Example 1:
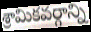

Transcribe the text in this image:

శ్రామికవర్గాన్ని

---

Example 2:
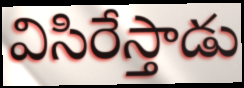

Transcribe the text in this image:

విసిరేస్తాడు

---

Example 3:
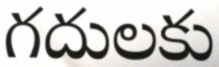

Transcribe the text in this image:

గదులకు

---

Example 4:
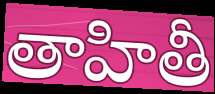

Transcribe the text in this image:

తాహితీ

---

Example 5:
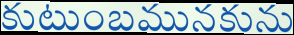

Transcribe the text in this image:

కుటుంబమునకును